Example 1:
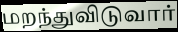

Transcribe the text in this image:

மறந்துவிடுவார்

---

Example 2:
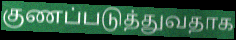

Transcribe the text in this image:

குணப்படுத்துவதாக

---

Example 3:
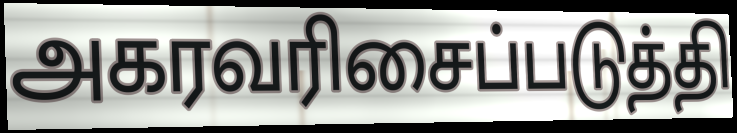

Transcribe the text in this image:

அகரவரிசைப்படுத்தி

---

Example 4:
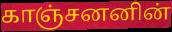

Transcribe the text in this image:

காஞ்சனனின்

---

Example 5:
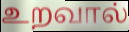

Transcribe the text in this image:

உறவால்